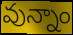
వున్నాం